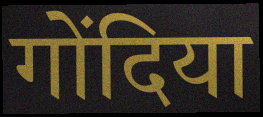
गोंदिया